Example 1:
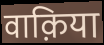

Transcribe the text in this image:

वाक़िया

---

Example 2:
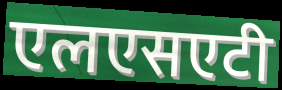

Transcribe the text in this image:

एलएसएटी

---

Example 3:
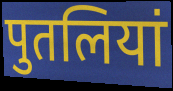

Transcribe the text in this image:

पुतलियां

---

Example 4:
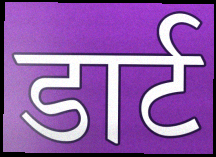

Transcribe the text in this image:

डार्ट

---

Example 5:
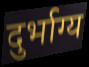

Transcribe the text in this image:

दुर्भाग्य